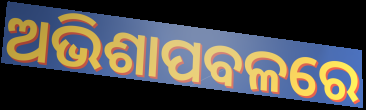
ଅଭିଶାପବଳରେ